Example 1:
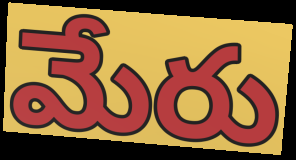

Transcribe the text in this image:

మేరు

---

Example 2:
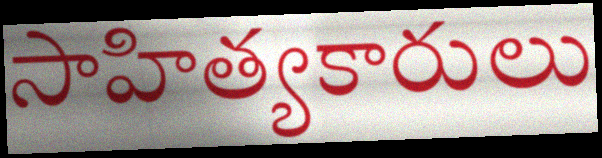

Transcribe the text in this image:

సాహిత్యకారులు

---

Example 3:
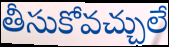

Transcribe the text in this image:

తీసుకోవచ్చులే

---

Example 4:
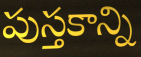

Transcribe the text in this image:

పుస్తకాన్ని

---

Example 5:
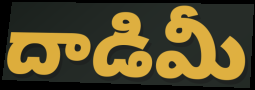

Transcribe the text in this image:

దాడిమీ